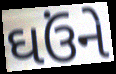
ઘઉંને